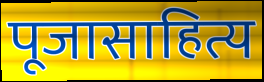
पूजासाहित्य